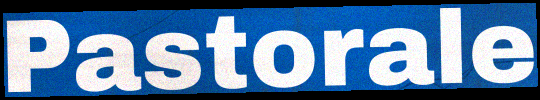
Pastorale